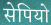
सेपियो